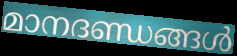
മാനദണ്ഡങ്ങൾ